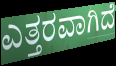
ಎತ್ತರವಾಗಿದೆ